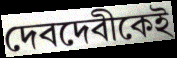
দেবদেবীকেই